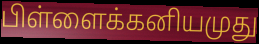
பிள்ளைக்கனியமுது